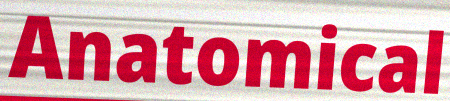
Anatomical